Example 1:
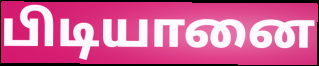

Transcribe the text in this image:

பிடியானை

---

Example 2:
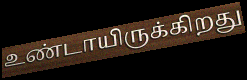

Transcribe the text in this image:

உண்டாயிருக்கிறது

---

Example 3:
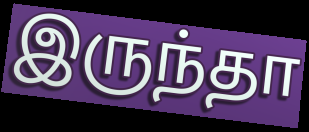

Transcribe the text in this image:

இருந்தா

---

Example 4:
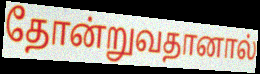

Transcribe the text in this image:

தோன்றுவதானால்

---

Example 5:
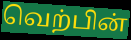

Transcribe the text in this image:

வெற்பின்